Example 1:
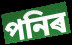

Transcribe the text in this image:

পনিৰ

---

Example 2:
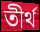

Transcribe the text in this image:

তীৰ্থ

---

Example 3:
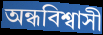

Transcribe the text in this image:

অন্ধবিশ্বাসী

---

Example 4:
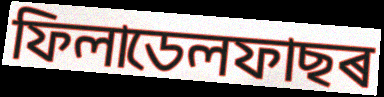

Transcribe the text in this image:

ফিলাডেলফাছৰ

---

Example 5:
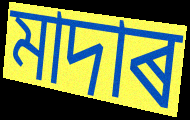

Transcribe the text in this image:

মাদাৰ